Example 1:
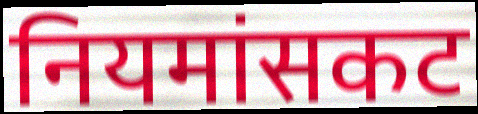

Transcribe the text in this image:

नियमांसकट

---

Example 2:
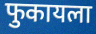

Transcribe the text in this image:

फुकायला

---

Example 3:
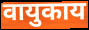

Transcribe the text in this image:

वायुकाय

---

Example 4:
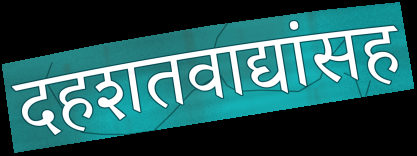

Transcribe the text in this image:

दहशतवाद्यांसह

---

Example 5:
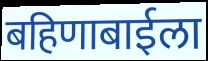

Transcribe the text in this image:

बहिणाबाईला